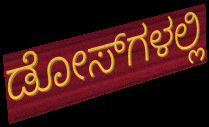
ಡೋಸ್‌ಗಳಲ್ಲಿ